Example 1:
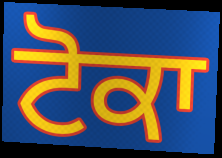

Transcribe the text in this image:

ਟੋਕਾ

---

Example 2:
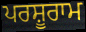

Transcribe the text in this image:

ਪਰਸ਼ੂਰਾਮ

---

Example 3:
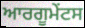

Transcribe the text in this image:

ਆਰਗੂਮੇੰਟਸ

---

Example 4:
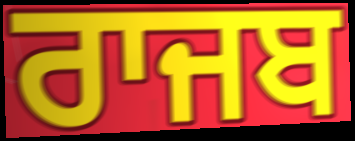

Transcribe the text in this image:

ਰਾਜਬ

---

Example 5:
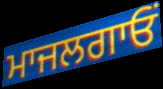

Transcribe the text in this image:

ਮਾਜਲਗਾਓਂ